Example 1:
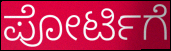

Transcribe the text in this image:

ಪೋರ್ಟಿಗೆ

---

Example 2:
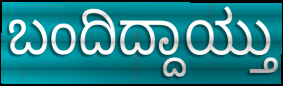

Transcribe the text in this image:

ಬಂದಿದ್ದಾಯ್ತು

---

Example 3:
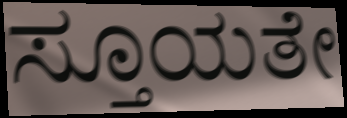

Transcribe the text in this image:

ಸ್ತೂಯತೇ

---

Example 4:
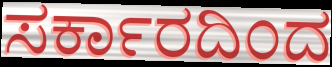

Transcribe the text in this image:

ಸರ್ಕಾರದಿಂದ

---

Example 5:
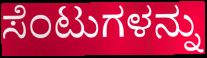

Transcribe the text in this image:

ಸೆಂಟುಗಳನ್ನು